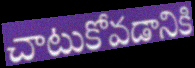
చాటుకోవడానికి